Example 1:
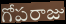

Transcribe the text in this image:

గోపరాజు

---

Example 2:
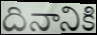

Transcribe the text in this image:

దినానికి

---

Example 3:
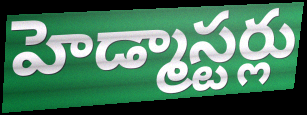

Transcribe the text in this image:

హెడ్మాస్టర్లు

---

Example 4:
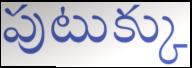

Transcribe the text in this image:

పుటుక్కు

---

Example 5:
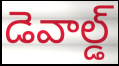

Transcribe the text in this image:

డెవాల్డ్